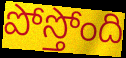
పోస్తోంది